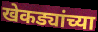
खेकड्यांच्या